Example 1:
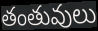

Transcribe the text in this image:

తంతువులు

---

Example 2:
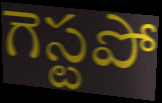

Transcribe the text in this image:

గెస్టపో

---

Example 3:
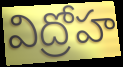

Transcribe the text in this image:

విద్రోహ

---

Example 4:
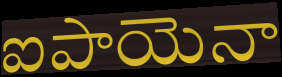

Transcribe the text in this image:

ఐపాయెనా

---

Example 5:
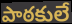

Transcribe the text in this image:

పాఠకులే